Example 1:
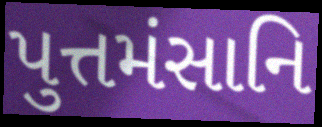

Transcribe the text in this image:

પુત્તમંસાનિ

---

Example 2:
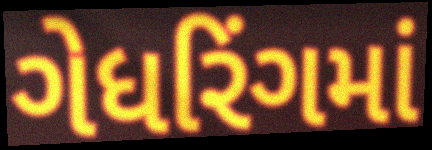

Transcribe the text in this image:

ગેધરિંગમાં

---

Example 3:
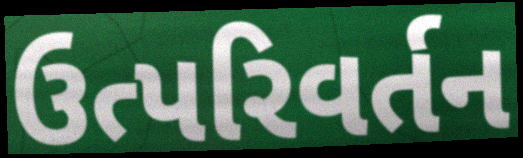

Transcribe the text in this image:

ઉત્પરિવર્તન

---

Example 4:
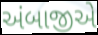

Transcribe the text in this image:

અંબાજીએ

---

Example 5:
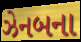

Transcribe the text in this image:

ઝેનબના